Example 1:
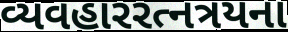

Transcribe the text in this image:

વ્યવહારરત્નત્રયના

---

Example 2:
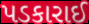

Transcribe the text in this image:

પડકારાઈ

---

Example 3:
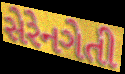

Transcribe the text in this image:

સેરેનગેતી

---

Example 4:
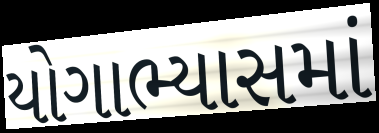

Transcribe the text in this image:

યોગાભ્યાસમાં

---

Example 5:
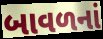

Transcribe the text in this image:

બાવળનાં